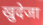
खुदेजा